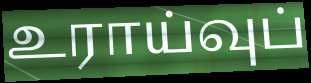
உராய்வுப்